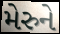
મેરુને